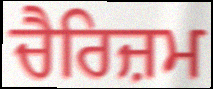
ਚੈਰਿਜ਼ਮ